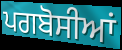
ਪਗਬੋਸੀਆਂ